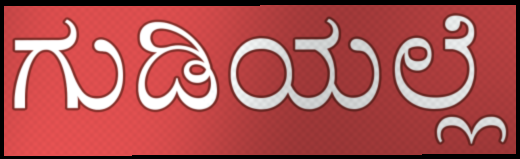
ಗುಡಿಯಲ್ಲೆ